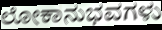
ಲೋಕಾನುಭವಗಳು